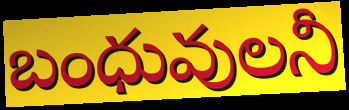
బంధువులనీ